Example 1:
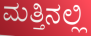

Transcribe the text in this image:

ಮತ್ತಿನಲ್ಲಿ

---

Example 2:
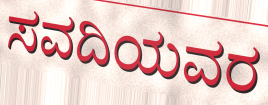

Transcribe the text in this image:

ಸವದಿಯವರ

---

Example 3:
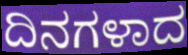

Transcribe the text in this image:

ದಿನಗಳಾದ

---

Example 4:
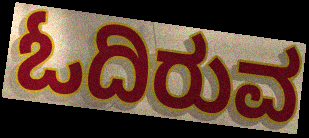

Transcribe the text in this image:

ಓದಿರುವ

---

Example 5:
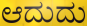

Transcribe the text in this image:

ಆದುದು